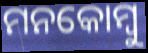
ମନକୋମ୍ବୁ